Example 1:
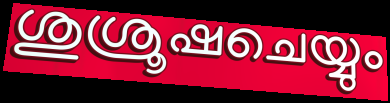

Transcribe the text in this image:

ശുശ്രൂഷചെയ്യും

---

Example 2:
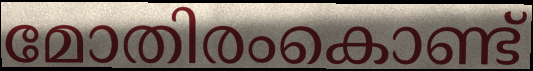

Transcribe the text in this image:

മോതിരംകൊണ്ട്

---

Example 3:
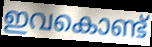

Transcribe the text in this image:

ഇവകൊണ്ട്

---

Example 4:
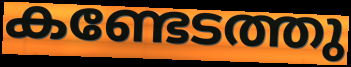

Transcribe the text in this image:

കണ്ടേടത്തു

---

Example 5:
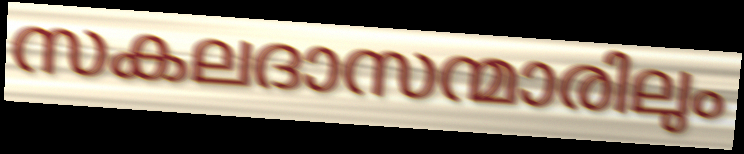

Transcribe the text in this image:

സകലദാസന്മാരിലും